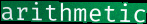
arithmetic